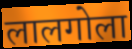
लालगोला